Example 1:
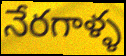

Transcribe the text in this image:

నేరగాళ్ళ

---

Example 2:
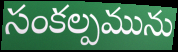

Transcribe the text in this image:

సంకల్పమును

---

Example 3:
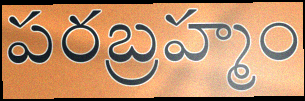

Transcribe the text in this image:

పరబ్రహ్మం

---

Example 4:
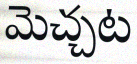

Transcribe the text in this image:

మెచ్చట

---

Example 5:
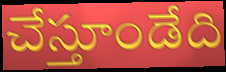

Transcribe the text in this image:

చేస్తూండేది